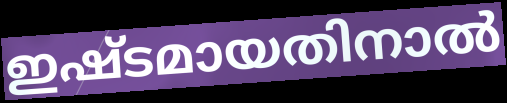
ഇഷ്ടമായതിനാൽ